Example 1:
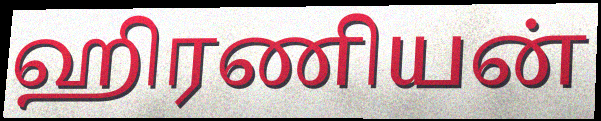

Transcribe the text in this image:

ஹிரணியன்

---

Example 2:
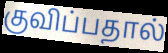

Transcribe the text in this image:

குவிப்பதால்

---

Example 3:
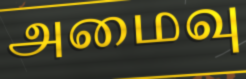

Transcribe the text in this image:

அமைவு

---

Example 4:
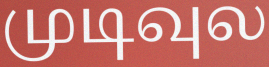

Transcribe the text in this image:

முடிவுல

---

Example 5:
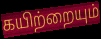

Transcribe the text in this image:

கயிற்றையும்